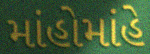
માંહોમાંહે